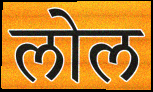
लोल